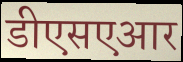
डीएसएआर